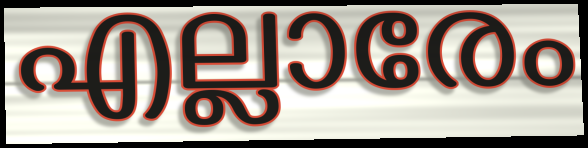
എല്ലാരേം